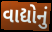
વાદ્યોનું